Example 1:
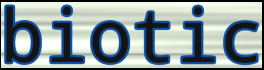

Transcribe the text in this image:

biotic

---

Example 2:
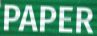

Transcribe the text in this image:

PAPER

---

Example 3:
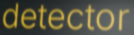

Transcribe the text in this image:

detector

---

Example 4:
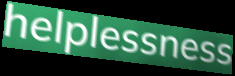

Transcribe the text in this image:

helplessness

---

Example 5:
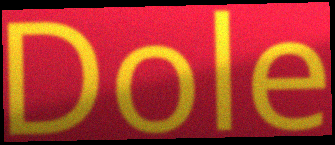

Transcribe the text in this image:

Dole